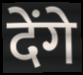
देंगे